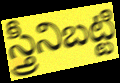
స్త్రీనిబట్టి